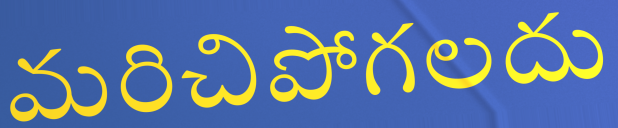
మరిచిపోగలదు